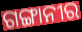
ଗଙ୍ଗାନୀର